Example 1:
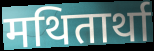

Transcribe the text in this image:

मथितार्था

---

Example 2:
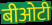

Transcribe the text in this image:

बीओटी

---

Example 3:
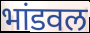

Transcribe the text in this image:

भांडवल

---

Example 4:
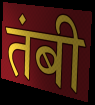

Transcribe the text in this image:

तंबी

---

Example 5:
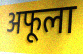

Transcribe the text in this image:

अफूला